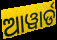
ଆୱାର୍ଡ